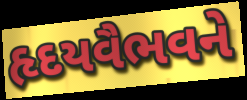
હૃદયવૈભવને